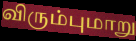
விரும்புமாறு